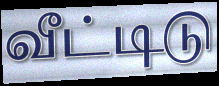
வீட்டிடு